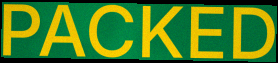
PACKED